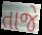
તાજે